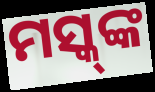
ମସ୍କ୍‌ଙ୍କ